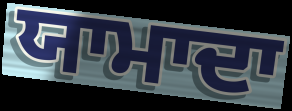
ਯਾਮਾਦਾ